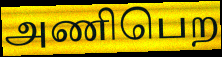
அணிபெற